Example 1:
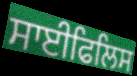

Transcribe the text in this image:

ਸਾਈਫਿਲਿਸ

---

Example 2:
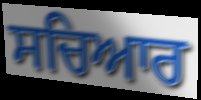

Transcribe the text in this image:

ਸਚਿਆਰ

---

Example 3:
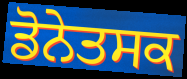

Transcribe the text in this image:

ਡੋਨੇਤਸਕ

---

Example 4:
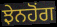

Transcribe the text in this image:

ਝੇਨਹੋਂਗ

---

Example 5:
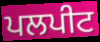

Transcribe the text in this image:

ਪਲਪੀਟ